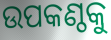
ଉପକଣ୍ଠକୁ